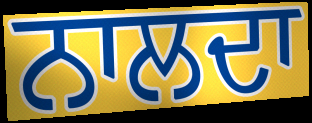
ਨਾਲਦਾ